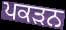
ਪਕੜਨ